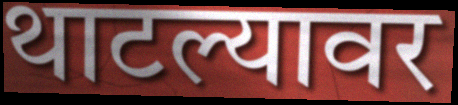
थाटल्यावर